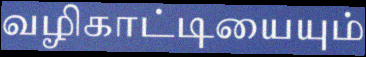
வழிகாட்டியையும்